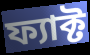
ফ্যাক্ট